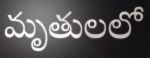
మృతులలో